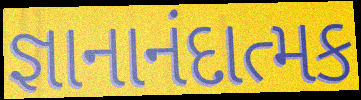
જ્ઞાનાનંદાત્મક